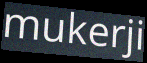
mukerji